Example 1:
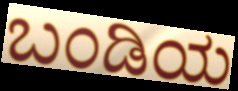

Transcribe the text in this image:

ಬಂಡಿಯ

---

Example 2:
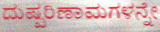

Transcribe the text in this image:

ದುಷ್ಪರಿಣಾಮಗಳನ್ನೇ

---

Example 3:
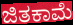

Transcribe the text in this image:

ಜಿತಕಾಮೆ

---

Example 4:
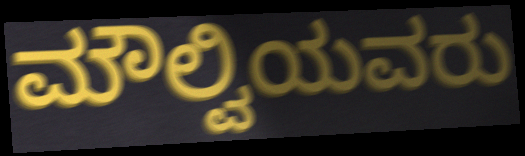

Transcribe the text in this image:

ಮೌಲ್ವಿಯವರು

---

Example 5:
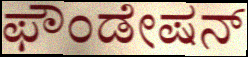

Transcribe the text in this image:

ಫೌಂಡೇಷನ್